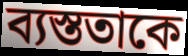
ব্যস্ততাকে